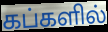
கப்களில்